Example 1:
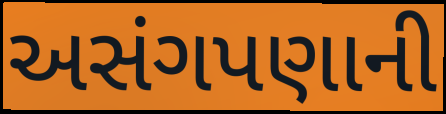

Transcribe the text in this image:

અસંગપણાની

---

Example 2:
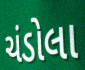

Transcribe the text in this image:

ચંડોલા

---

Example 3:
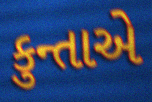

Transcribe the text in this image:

કુન્તાએ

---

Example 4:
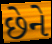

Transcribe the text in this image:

છેને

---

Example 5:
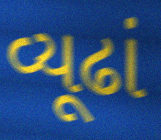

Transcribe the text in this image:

વ્યૂઢાં